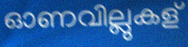
ഓണവില്ലുകള്